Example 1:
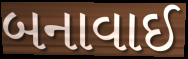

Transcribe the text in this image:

બનાવાઈ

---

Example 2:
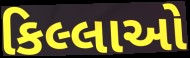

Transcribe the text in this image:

કિલ્લાઓ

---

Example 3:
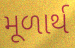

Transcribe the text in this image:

મૂળાર્થ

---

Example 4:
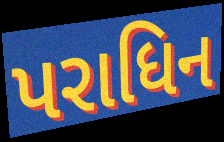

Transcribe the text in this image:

પરાધિન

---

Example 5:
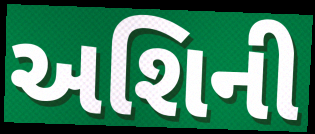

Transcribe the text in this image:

અશિની